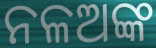
ନଳଅଙ୍କ